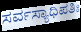
ಸರ್ವಸ್ಯಾಧಿಪತಿಃ